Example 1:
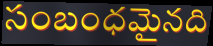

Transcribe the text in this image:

సంబంధమైనది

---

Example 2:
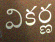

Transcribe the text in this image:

వికర్ణ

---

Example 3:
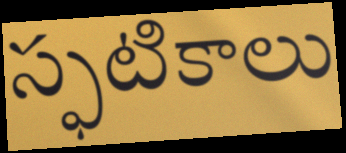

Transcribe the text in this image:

స్ఫటికాలు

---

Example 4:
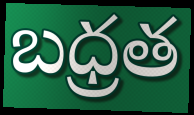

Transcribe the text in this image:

బధ్రత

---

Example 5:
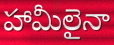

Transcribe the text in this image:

హామీలైనా